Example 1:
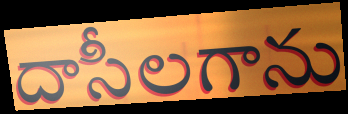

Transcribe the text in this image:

దాసీలగాను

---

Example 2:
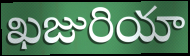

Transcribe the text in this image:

ఖజురియా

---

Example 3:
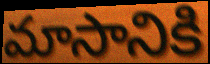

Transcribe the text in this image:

మాసానికి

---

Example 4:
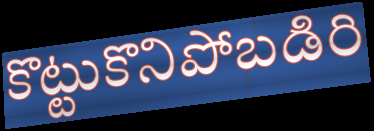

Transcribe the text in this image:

కొట్టుకొనిపోబడిరి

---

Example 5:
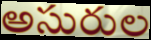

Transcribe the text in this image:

అసురుల